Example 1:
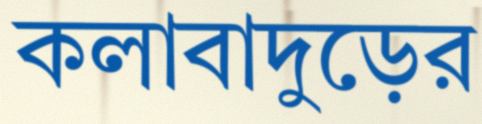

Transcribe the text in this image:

কলাবাদুড়ের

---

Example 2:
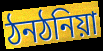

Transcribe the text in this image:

ঠনঠনিয়া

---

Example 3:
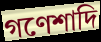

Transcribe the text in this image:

গণেশাদি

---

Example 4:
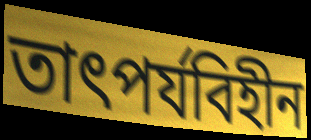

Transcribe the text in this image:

তাৎপর্যবিহীন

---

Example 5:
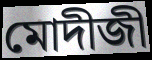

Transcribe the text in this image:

মোদীজী